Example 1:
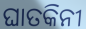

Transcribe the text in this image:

ଘାତକିନୀ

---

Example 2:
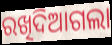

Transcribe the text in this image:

ରଖିଦିଆଗଲା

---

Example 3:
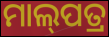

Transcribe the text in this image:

ମାଲ୍‌ପତ୍ର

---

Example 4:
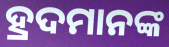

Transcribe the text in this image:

ହ୍ରଦମାନଙ୍କ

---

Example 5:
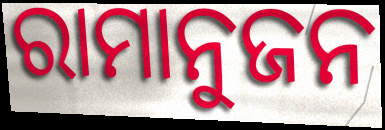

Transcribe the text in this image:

ରାମାନୁଜନ